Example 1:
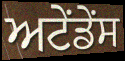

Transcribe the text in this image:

ਅਟੇਂਡੇਂਸ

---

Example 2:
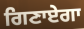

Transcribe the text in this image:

ਗਿਣਾਏਗਾ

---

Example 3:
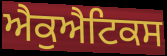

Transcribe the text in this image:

ਐਕੁਐਟਿਕਸ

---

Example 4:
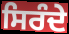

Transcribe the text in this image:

ਸਿਰੰਦੇ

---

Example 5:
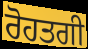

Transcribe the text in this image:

ਰੋਹਤਗੀ